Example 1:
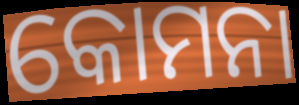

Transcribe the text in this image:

କୋମନା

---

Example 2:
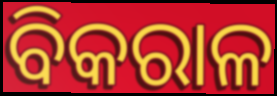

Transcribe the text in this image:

ବିକରାଳ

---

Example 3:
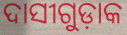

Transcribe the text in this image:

ଦାସୀଗୁଡ଼ାକ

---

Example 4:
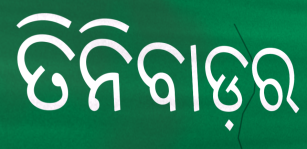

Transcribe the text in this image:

ତିନିବାଡ଼ର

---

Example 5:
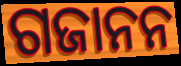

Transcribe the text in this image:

ଗଜାନନ